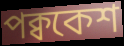
পক্বকেশ